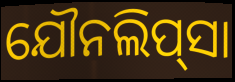
ଯୌନଲିପ୍‌ସା